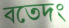
বতেদং